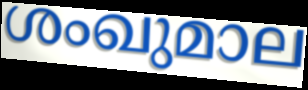
ശംഖുമാല